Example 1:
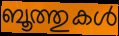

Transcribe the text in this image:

ബൂത്തുകൾ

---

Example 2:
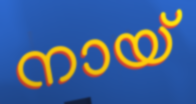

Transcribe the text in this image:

നായ്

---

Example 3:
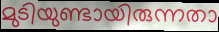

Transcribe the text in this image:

മുടിയുണ്ടായിരുന്നതാ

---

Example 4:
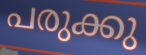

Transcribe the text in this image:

പരുക്കു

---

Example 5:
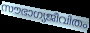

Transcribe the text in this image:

സൗഭാഗ്യജീവിതം